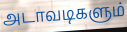
அடாவடிகளும்